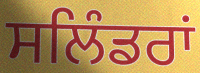
ਸਲਿੰਡਰਾਂ